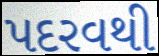
પદરવથી